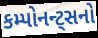
કમ્પોનન્ટ્સનો